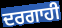
ਦਰਗਾਹੀ